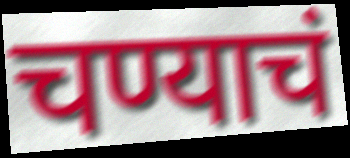
चण्याचं